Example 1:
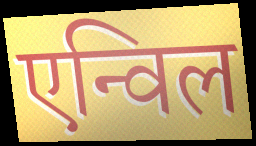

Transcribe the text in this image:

एन्विल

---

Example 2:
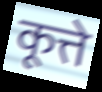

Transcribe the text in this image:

कूत्ते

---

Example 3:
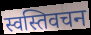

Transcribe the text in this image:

स्वस्तिवचन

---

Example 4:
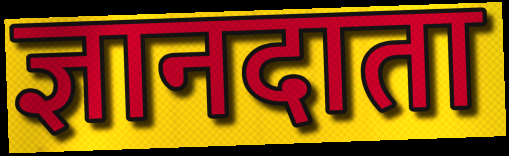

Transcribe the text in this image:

ज्ञानदाता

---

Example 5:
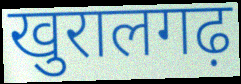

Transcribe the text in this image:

खुरालगढ़